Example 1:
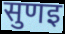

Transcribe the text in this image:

सुणइ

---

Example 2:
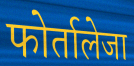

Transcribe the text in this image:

फोर्तालेजा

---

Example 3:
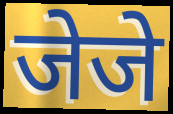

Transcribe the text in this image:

जेजे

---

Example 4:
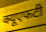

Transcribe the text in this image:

क्यूएफटी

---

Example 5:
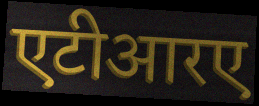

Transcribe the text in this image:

एटीआरए